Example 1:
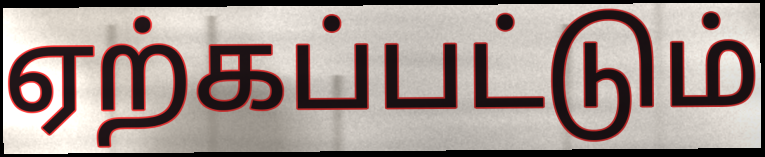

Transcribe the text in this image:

ஏற்கப்பட்டும்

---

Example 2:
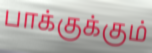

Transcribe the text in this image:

பாக்குக்கும்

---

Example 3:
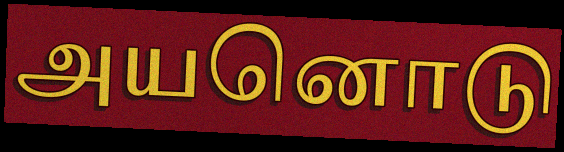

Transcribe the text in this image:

அயனொடு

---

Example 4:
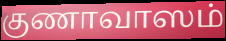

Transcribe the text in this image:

குணாவாஸம்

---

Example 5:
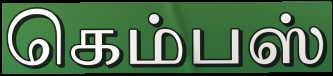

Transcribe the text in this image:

கெம்பஸ்